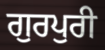
ਗੁਰਪੁਰੀ